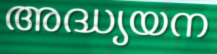
അദ്ധ്യയന